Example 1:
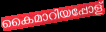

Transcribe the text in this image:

കൈമാറിയപ്പോള്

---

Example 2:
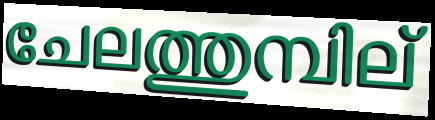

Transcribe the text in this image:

ചേലത്തുമ്പില്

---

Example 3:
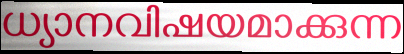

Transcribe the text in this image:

ധ്യാനവിഷയമാക്കുന്ന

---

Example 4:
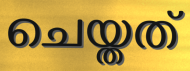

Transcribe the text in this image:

ചെയ്തത്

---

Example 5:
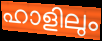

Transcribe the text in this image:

ഹാളിലും